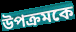
উপক্রমকে